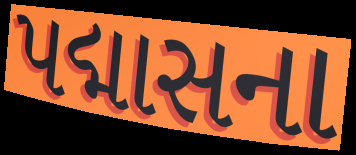
પદ્માસના